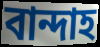
বান্দাহ